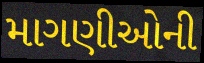
માગણીઓની